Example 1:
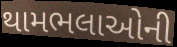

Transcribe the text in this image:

થામભલાઓની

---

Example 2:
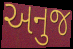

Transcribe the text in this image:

અનુજ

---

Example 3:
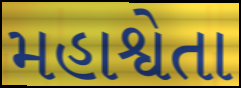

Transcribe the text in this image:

મહાશ્વેતા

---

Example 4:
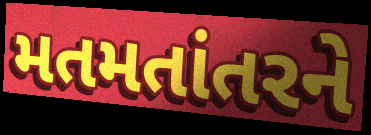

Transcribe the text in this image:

મતમતાંતરને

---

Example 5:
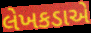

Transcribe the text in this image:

લેખકડાએ